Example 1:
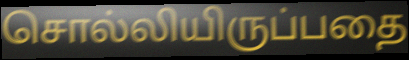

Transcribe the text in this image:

சொல்லியிருப்பதை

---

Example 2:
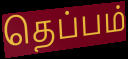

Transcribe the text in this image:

தெப்பம்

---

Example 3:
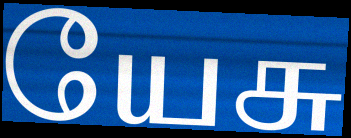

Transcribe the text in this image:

யேசு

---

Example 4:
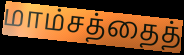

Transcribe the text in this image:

மாம்சத்தைத்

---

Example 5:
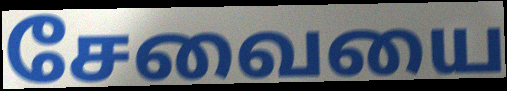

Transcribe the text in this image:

சேவையை